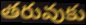
తరువుకు